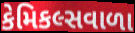
કેમિકલ્સવાળા